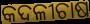
କଦଳୀଚାଷ